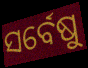
ସର୍ବେଷୁ